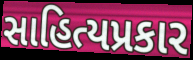
સાહિત્યપ્રકાર